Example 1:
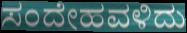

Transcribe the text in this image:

ಸಂದೇಹವಳಿದು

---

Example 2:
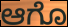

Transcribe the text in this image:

ಆಗೊ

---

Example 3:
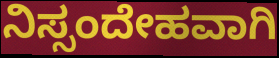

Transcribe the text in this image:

ನಿಸ್ಸಂದೇಹವಾಗಿ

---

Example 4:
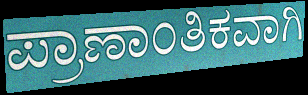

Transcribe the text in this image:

ಪ್ರಾಣಾಂತಿಕವಾಗಿ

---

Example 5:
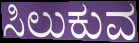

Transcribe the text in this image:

ಸಿಲುಕುವ